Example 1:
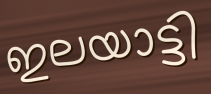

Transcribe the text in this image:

ഇലയാട്ടി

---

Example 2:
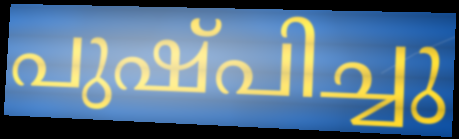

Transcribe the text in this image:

പുഷ്പിച്ചു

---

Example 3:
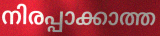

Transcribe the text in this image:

നിരപ്പാക്കാത്ത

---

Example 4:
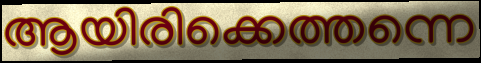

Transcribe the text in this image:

ആയിരിക്കെത്തന്നെ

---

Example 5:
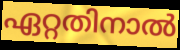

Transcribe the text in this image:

ഏറ്റതിനാൽ